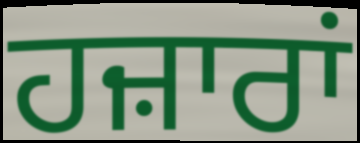
ਹਜ਼ਾਰਾਂ